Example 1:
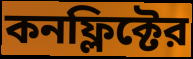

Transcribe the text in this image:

কনফ্লিক্টের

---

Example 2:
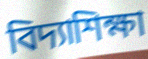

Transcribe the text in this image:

বিদ্যাশিক্ষা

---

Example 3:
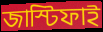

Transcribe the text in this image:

জাস্টিফাই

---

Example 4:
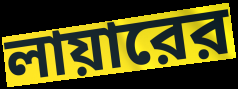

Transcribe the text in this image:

লায়ারের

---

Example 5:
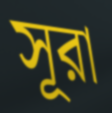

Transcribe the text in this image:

সূরা